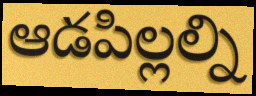
ఆడపిల్లల్ని